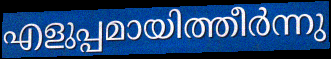
എളുപ്പമായിത്തീർന്നു